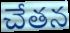
చేతన